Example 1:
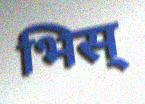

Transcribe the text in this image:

भिस्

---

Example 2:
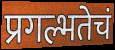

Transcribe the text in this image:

प्रगल्भतेचं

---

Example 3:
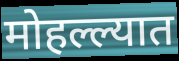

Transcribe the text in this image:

मोहल्ल्यात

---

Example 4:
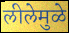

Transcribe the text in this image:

लीलेमुळे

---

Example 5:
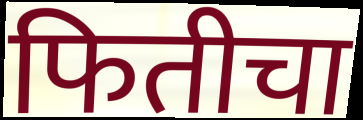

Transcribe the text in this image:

फितीचा